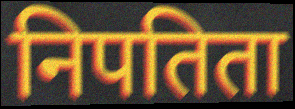
निपतिता